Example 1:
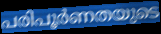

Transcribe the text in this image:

പരിപൂർണതയുടെ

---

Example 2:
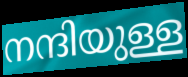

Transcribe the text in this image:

നന്ദിയുള്ള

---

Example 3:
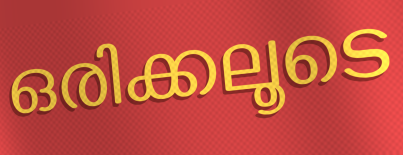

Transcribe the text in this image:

ഒരിക്കലൂടെ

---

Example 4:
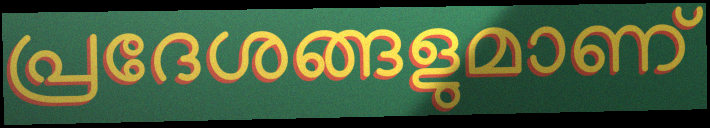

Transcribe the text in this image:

പ്രദേശങ്ങളുമാണ്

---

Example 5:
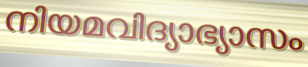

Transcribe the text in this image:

നിയമവിദ്യാഭ്യാസം